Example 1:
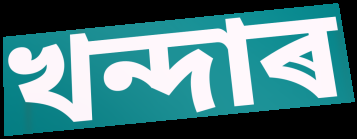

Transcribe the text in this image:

খন্দাৰ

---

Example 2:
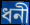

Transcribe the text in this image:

ধনী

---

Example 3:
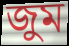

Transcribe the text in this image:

জুম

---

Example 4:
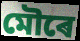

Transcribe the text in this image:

মৌৰে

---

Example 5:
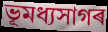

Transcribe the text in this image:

ভূমধ্যসাগৰ